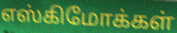
எஸ்கிமோக்கள்